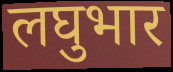
लघुभार